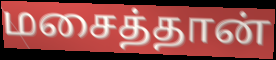
மசைத்தான்